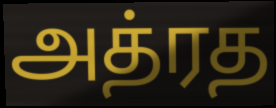
அத்ரத